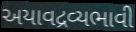
અયાવદ્રવ્યભાવી